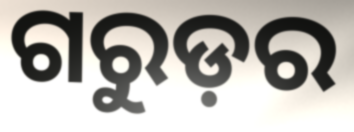
ଗରୁଡ଼ର